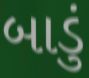
બાડું